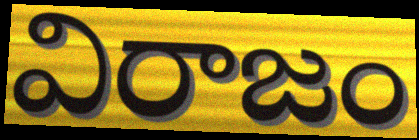
విరాజం